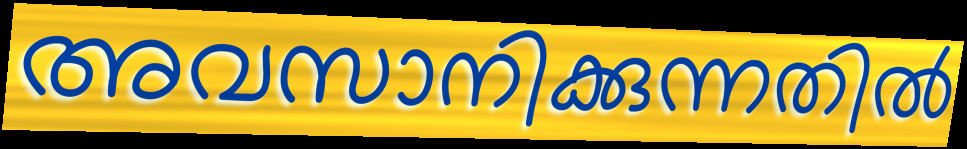
അവസാനിക്കുന്നതിൽ